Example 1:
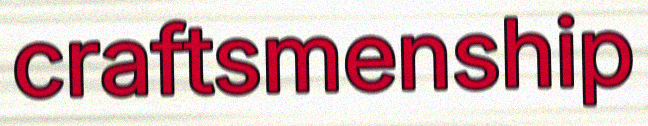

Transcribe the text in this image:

craftsmenship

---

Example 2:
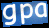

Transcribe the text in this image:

gpa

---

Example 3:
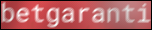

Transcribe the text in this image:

betgaranti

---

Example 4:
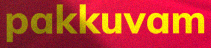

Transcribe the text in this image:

pakkuvam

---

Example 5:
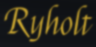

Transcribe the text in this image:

Ryholt